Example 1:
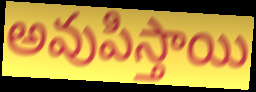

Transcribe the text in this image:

అవుపిస్తాయి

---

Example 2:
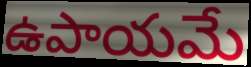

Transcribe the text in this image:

ఉపాయమే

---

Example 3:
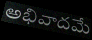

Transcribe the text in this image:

అభివాదమే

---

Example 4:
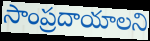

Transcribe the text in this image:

సాంప్రదాయాలని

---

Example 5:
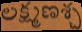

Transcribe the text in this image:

లక్ష్మణశ్చ